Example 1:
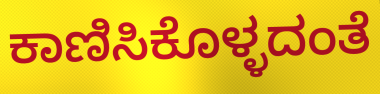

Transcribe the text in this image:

ಕಾಣಿಸಿಕೊಳ್ಳದಂತೆ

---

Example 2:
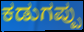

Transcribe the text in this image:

ಕಡುಗಪ್ಪು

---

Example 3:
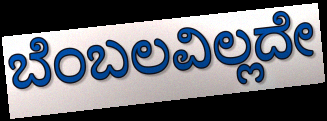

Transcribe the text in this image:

ಬೆಂಬಲವಿಲ್ಲದೇ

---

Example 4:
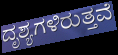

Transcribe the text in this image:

ದೃಶ್ಯಗಳಿರುತ್ತವೆ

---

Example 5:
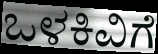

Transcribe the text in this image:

ಒಳಕಿವಿಗೆ